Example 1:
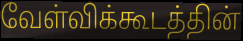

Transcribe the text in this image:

வேள்விக்கூடத்தின்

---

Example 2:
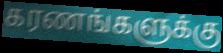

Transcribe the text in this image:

கரணங்களுக்கு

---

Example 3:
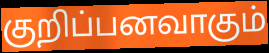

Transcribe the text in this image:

குறிப்பனவாகும்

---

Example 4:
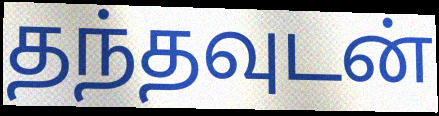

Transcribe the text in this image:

தந்தவுடன்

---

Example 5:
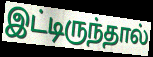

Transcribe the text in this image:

இட்டிருந்தால்